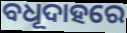
ବଧୂଦାହରେ